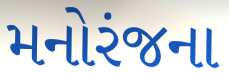
મનોરંજના